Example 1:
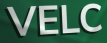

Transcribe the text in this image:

VELC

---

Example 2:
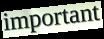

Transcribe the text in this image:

important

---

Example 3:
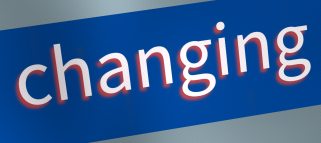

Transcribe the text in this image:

changing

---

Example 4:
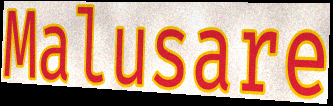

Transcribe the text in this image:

Malusare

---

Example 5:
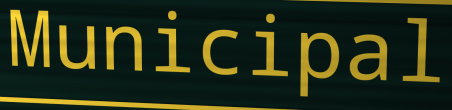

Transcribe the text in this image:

Municipal